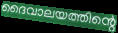
ദൈവാലയത്തിന്റെ